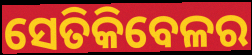
ସେତିକିବେଳର